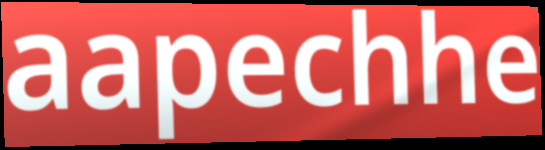
aapechhe